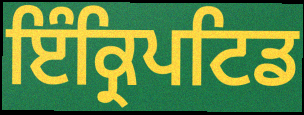
ਇੰਕ੍ਰਿਪਟਿਡ